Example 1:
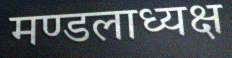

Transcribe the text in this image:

मण्डलाध्यक्ष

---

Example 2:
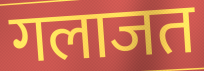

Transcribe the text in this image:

गलाजत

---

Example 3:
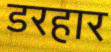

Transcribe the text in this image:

डरहार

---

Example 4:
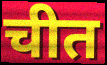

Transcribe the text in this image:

चीत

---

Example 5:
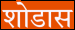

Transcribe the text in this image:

शोडास